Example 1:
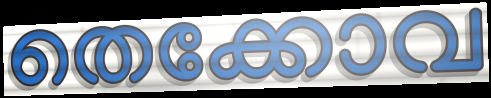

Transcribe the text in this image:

തെക്കോവ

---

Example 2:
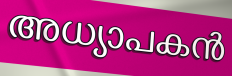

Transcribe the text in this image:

അധ്യാപകൻ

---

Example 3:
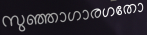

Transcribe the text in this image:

സുഞ്ഞാഗാരഗതോ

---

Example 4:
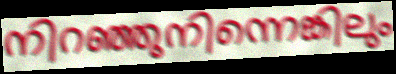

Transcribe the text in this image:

നിറഞ്ഞുനിന്നെങ്കിലും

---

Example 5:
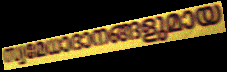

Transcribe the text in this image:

സ്വമേധാദാനങ്ങളുമായ